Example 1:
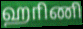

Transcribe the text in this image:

ஹரிணி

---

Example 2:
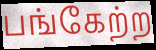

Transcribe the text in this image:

பங்கேற்ற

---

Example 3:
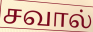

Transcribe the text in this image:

சவால்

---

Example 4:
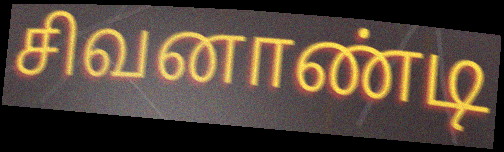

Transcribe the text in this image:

சிவனாண்டி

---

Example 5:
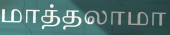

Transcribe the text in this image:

மாத்தலாமா